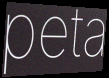
peta